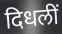
दिधलीं